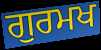
ਗੁਰਮਖ